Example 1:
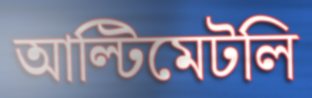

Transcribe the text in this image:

আল্টিমেটলি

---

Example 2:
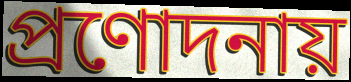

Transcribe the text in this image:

প্রণোদনায়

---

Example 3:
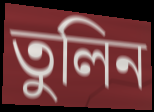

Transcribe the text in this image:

তুলিন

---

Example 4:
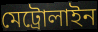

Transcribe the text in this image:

মেট্রোলাইন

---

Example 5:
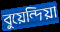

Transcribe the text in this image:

বুয়েন্দিয়া